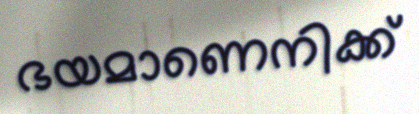
ഭയമാണെനിക്ക്